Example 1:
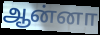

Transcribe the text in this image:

ஆன்னா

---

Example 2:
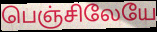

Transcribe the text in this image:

பெஞ்சிலேயே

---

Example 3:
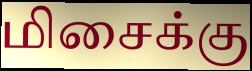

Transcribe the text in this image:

மிசைக்கு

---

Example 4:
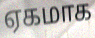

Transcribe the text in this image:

ஏகமாக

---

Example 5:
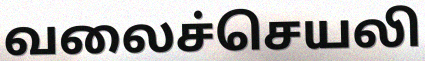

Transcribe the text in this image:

வலைச்செயலி